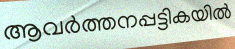
ആവർത്തനപ്പട്ടികയിൽ